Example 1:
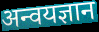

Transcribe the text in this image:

अन्वयज्ञान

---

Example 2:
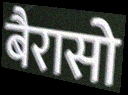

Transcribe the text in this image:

बैरासो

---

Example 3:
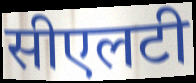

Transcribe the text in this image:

सीएलटी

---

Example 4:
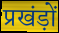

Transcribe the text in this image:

प्रखंड़ों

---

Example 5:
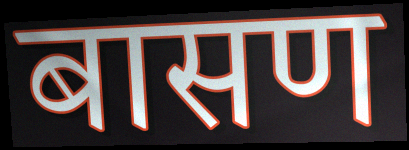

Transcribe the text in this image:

बासण